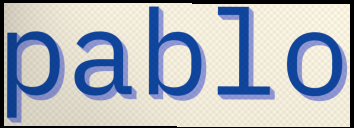
pablo